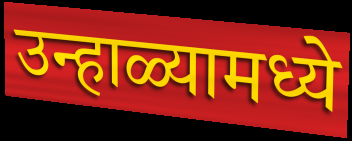
उन्हाळ्यामध्ये